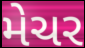
મેચર